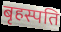
बृहस्‍पति